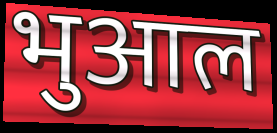
भुआल